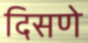
दिसणे